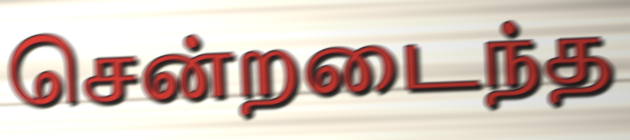
சென்றடைந்த